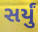
સર્યું